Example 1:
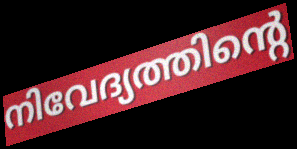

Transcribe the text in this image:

നിവേദ്യത്തിന്റെ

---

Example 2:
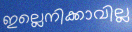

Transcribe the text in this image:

ഇല്ലെനിക്കാവില്ല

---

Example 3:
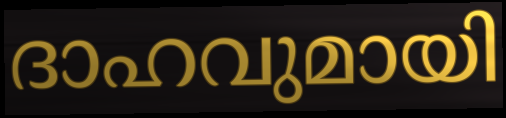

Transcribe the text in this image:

ദാഹവുമായി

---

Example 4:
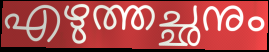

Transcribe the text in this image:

എഴുത്തച്ഛനും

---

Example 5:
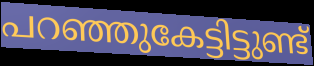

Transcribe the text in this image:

പറഞ്ഞുകേട്ടിട്ടുണ്ട്